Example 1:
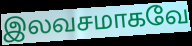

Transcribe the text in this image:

இலவசமாகவே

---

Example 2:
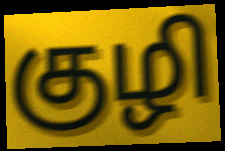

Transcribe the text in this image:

குழி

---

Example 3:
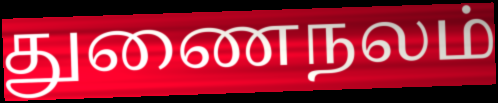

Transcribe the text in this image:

துணைநலம்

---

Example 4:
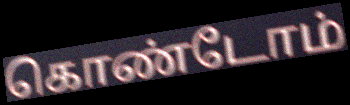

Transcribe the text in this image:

கொண்டோம்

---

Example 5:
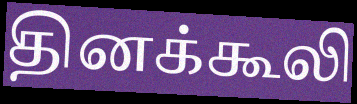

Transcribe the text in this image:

தினக்கூலி